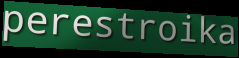
perestroika